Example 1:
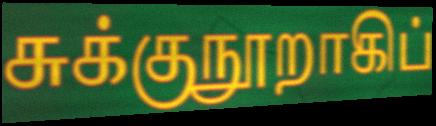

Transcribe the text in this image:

சுக்குநூறாகிப்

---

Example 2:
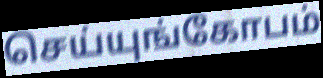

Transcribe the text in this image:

செய்யுங்கோபம்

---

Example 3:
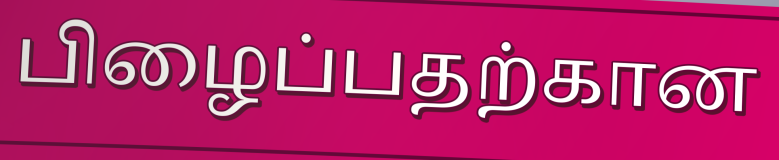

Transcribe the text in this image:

பிழைப்பதற்கான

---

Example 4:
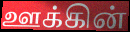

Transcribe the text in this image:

ஊக்கின்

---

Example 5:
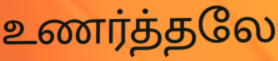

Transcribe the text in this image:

உணர்த்தலே